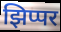
झिप्पर